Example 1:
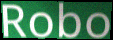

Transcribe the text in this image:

Robo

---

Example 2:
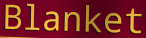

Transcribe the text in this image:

Blanket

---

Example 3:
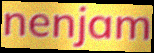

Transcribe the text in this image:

nenjam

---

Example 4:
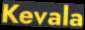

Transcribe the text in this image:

Kevala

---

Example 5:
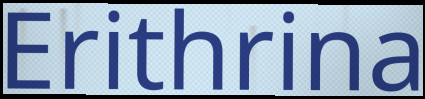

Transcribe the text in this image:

Erithrina